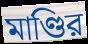
মাণ্ডির